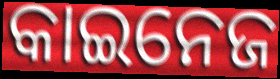
କାଇନେଜ